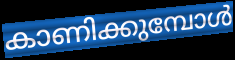
കാണിക്കുമ്പോൾ